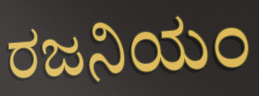
ರಜನಿಯಂ